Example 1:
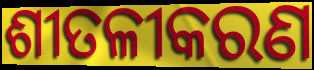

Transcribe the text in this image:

ଶୀତଳୀକରଣ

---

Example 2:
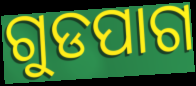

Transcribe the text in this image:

ଗୁଡପାଗ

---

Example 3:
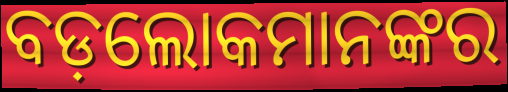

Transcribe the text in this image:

ବଡ଼ଲୋକମାନଙ୍କର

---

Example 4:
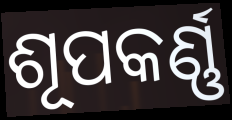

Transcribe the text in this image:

ଶୂପକର୍ଣ୍ଣ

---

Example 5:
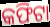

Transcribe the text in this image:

କଫିଟା